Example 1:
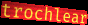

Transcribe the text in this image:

trochlear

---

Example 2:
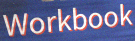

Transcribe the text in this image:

Workbook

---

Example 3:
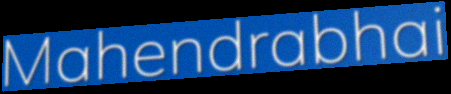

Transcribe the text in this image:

Mahendrabhai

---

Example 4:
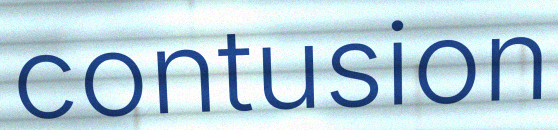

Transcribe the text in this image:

contusion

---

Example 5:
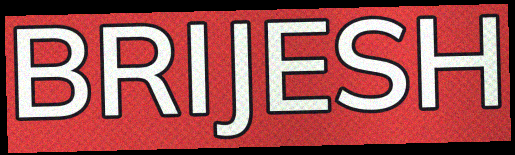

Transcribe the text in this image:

BRIJESH